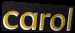
carol